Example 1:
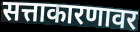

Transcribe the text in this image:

सत्ताकारणावर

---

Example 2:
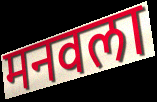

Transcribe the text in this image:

मनवला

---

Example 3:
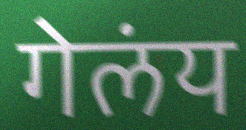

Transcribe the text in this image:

गेलंय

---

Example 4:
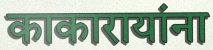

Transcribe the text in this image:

काकारायांना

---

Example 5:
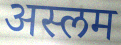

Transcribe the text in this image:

अस्लम